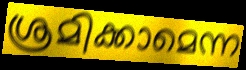
ശ്രമിക്കാമെന്ന